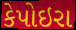
કેપોઇરા